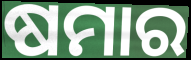
ଷମାର